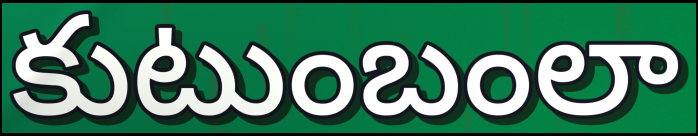
కుటుంబంలా